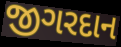
જીગરદાન